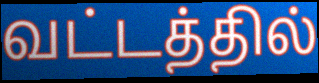
வட்டத்தில்